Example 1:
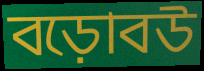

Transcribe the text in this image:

বড়োবউ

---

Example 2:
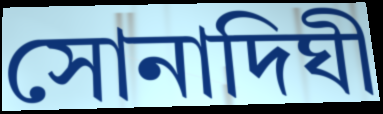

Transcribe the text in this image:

সোনাদিঘী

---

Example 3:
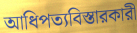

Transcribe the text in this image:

আধিপত্যবিস্তারকারী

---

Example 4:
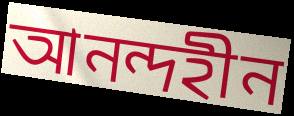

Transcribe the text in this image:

আনন্দহীন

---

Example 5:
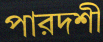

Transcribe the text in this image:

পারদশী